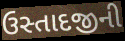
ઉસ્તાદજીની